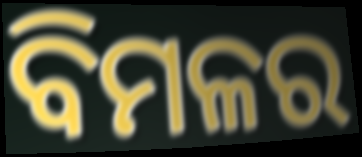
ବିମଳର